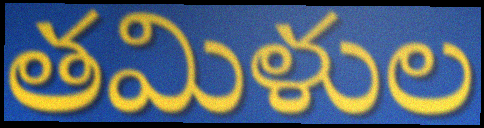
తమిళుల